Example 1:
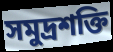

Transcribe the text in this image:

সমুদ্রশক্তি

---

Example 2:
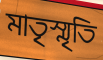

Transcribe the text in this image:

মাতৃস্মৃতি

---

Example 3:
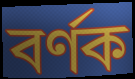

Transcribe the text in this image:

বর্ণক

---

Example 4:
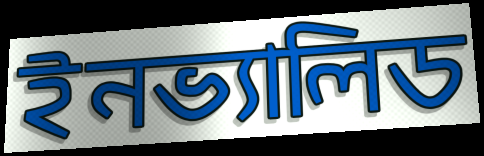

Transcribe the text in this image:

ইনভ্যালিড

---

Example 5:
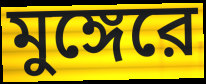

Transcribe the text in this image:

মুঙ্গেরে